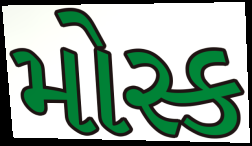
મોસ્ક